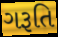
ગરૂતિ